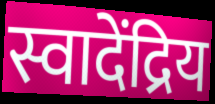
स्वादेंद्रिय